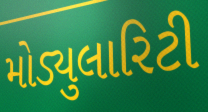
મોડ્યુલારિટી